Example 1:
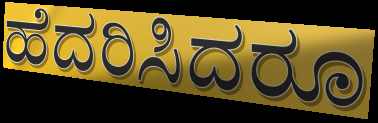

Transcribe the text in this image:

ಹೆದರಿಸಿದರೂ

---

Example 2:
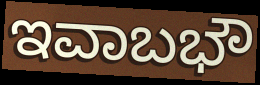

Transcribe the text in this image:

ಇವಾಬಭೌ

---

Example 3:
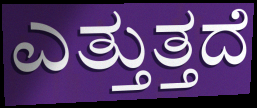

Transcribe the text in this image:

ಎತ್ತುತ್ತದೆ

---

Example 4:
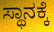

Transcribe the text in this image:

ಸ್ಥಾನಕ್ಕೆ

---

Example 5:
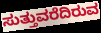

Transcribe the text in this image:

ಸುತ್ತುವರೆದಿರುವ